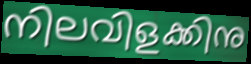
നിലവിളക്കിനു